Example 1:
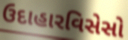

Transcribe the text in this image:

ઉદાહારવિસેસો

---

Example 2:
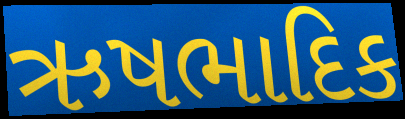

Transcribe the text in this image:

ઋષભાદિક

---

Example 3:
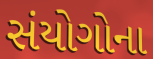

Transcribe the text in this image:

સંયોગોના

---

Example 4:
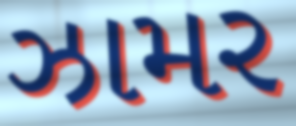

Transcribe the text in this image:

ઝામર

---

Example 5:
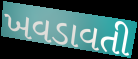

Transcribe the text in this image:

ખવડાવતી